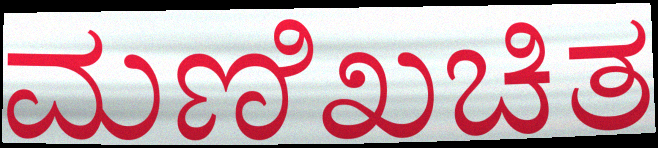
ಮಣಿಖಚಿತ